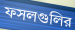
ফসলগুলির